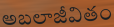
అబలాజీవితం